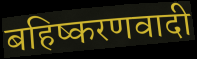
बहिष्करणवादी